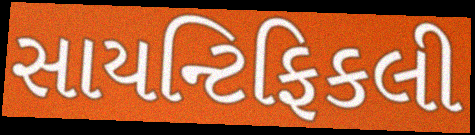
સાયન્ટિફિકલી